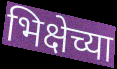
भिक्षेच्या